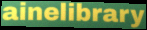
ainelibrary